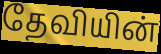
தேவியின்